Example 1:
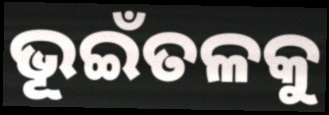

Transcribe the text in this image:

ଭୂଇଁତଳକୁ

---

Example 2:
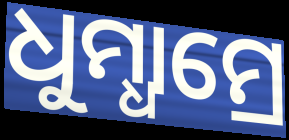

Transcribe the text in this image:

ଧୁମ୍ଧାମ୍ରେ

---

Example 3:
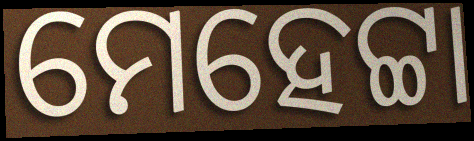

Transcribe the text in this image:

ମେହେଟ୍ଟା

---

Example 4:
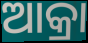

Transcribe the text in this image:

ଆକ୍ରା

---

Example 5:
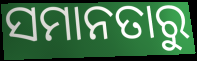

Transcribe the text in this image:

ସମାନତାରୁ